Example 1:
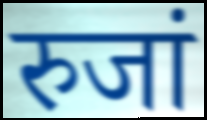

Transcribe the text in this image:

रुजां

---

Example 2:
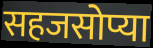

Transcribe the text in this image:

सहजसोप्या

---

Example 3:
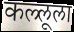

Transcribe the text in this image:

कल्लूला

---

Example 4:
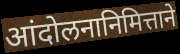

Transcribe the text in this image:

आंदोलनानिमित्ताने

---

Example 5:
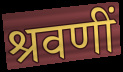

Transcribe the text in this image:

श्रवणीं